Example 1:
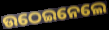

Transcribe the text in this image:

ଉଠେଇନେଲେ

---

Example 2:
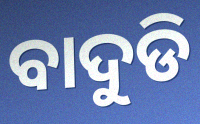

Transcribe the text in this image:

ବାଦୁଡି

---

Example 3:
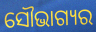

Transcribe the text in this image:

ସୌଭାଗ୍ୟର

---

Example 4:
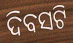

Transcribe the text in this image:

ଦିବସଟି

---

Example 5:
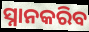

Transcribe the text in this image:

ସ୍ନାନକରିବ